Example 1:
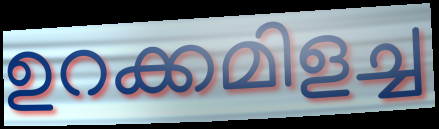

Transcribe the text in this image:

ഉറക്കമിളച്ച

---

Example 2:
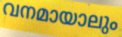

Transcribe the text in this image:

വനമായാലും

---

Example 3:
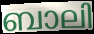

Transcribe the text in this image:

ബാലി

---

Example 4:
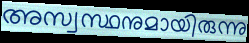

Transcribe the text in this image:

അസ്വസ്ഥനുമായിരുന്നു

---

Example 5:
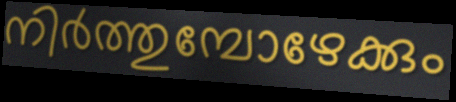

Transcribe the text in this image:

നിർത്തുമ്പോഴേക്കും